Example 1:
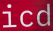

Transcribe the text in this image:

icd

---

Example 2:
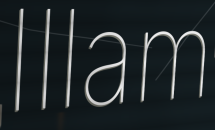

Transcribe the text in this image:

Illam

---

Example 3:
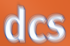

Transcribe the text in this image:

dcs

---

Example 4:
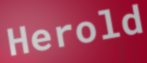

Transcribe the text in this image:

Herold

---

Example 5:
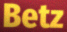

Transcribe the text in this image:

Betz